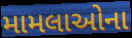
મામલાઓના